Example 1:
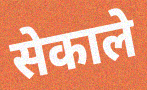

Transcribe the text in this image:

सेकाले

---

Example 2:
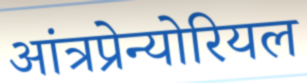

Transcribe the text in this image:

आंत्रप्रेन्योरियल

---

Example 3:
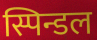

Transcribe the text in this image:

स्पिन्डल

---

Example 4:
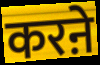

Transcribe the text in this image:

करऩे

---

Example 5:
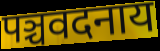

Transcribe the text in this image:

पञ्चवदनाय